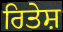
ਰਿਤੇਸ਼